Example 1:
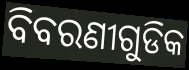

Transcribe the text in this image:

ବିବରଣୀଗୁଡିକ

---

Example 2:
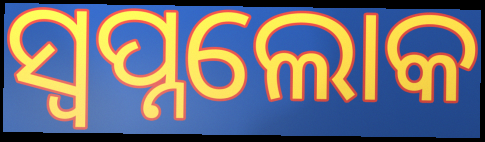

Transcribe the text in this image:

ସ୍ଵପ୍ନଲୋକ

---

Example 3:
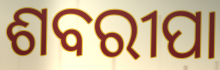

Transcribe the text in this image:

ଶବରୀପା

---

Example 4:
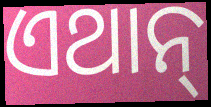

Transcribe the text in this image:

ଏଥାନ୍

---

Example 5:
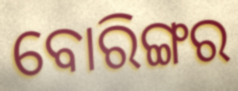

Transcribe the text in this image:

ବୋରିଙ୍ଗର